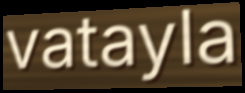
vatayla